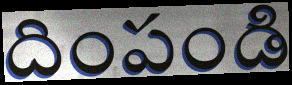
దింపండి